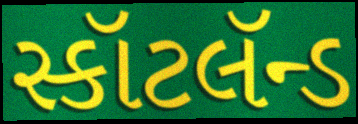
સ્કૉટલૅન્ડ